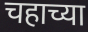
चहाच्या